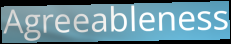
Agreeableness